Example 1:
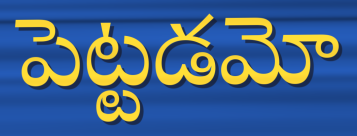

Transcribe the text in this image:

పెట్టడమో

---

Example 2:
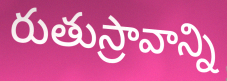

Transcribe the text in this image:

రుతుస్రావాన్ని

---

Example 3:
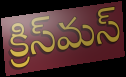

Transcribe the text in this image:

క్రిస్‌మస్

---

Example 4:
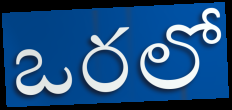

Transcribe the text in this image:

ఒరలో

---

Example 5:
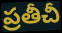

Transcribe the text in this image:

ప్రతీచీ